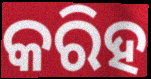
କରିହ